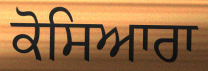
ਕੋਸਿਆਰਾ